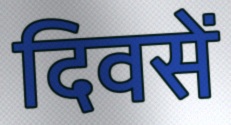
दिवसें